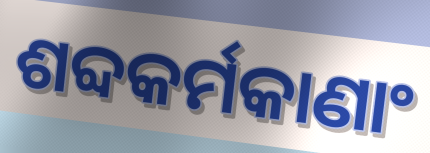
ଶବ୍ଦକର୍ମକାଣାଂ